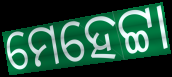
ମେହେଟ୍ଟା